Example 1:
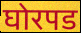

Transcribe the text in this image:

घोरपड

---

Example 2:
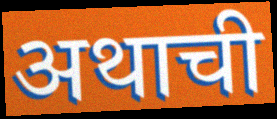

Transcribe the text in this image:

अथाची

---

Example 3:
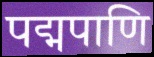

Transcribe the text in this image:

पद्मपाणि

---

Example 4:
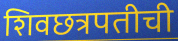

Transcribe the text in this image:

शिवछत्रपतीची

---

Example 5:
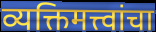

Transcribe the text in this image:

व्यक्तिमत्त्वांचा